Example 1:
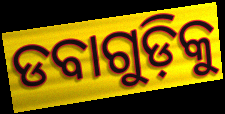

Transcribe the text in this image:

ଡବାଗୁଡ଼ିକୁ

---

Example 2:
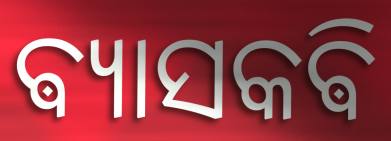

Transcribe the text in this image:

ଵ୍ୟାସକଵି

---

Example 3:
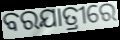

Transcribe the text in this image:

ବରଯାତ୍ରୀରେ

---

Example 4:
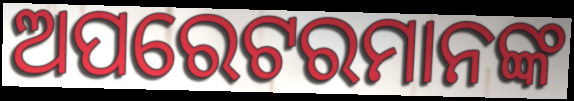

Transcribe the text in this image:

ଅପରେଟରମାନଙ୍କ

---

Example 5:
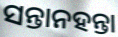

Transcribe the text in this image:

ସନ୍ତାନହନ୍ତା